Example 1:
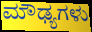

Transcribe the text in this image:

ಮೌಢ್ಯಗಳು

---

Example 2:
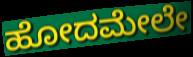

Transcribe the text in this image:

ಹೋದಮೇಲೇ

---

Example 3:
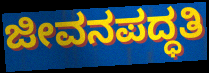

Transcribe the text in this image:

ಜೀವನಪದ್ಧತಿ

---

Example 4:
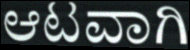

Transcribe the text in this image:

ಆಟವಾಗಿ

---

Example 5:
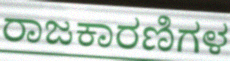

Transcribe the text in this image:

ರಾಜಕಾರಣಿಗಳ